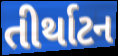
તીર્થાટન